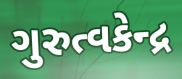
ગુરુત્વકેન્દ્ર